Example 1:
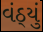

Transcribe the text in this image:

વંઠ્યું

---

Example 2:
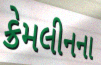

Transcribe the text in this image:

ક્રેમલીનના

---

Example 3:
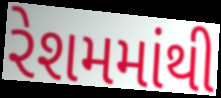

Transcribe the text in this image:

રેશમમાંથી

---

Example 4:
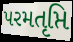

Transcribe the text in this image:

પરમતૃપ્તિ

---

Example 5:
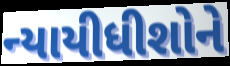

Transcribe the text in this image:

ન્યાયીધીશોને